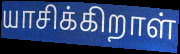
யாசிக்கிறாள்